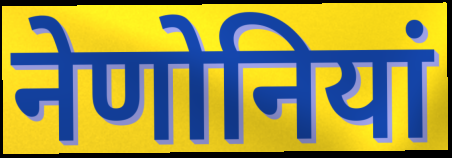
नेणोनियां